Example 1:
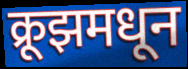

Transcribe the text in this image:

क्रूझमधून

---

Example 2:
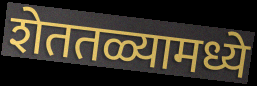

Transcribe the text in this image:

शेततळ्यामध्ये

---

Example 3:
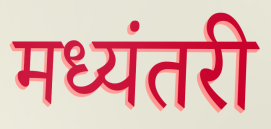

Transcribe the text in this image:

मध्यंतरी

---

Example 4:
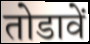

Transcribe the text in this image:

तोडावें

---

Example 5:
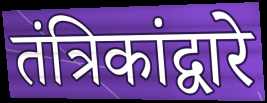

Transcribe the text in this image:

तंत्रिकांद्वारे